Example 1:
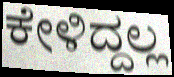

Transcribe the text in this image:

ಕೇಳಿದ್ದಲ್ಲ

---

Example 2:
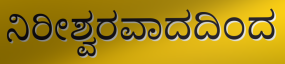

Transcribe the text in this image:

ನಿರೀಶ್ವರವಾದದಿಂದ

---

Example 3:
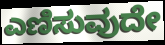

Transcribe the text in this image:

ಎಣಿಸುವುದೇ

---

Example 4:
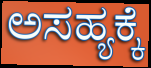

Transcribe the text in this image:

ಅಸಹ್ಯಕ್ಕೆ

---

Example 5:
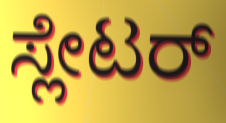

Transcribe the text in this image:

ಸ್ಲೇಟರ್